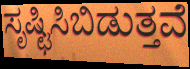
ಸೃಷ್ಟಿಸಿಬಿಡುತ್ತವೆ